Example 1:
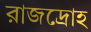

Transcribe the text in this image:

রাজদ্রোহ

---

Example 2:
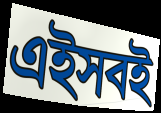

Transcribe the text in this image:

এইসবই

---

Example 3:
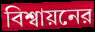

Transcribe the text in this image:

বিশ্বায়নের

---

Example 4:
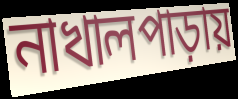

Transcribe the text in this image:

নাখালপাড়ায়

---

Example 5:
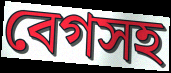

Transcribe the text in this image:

বেগসহ